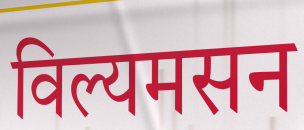
विल्यमसन